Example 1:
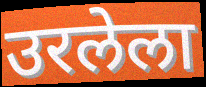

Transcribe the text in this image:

उरलेला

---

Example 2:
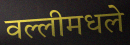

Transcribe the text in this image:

वल्लीमधले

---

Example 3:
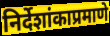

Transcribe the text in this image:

निर्देशांकाप्रमाणे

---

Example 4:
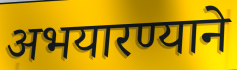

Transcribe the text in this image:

अभयारण्याने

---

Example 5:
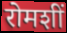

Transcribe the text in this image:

रोमशीं